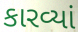
કારવ્યાં